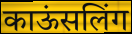
काऊंसलिंग